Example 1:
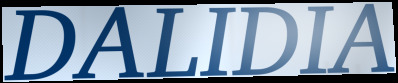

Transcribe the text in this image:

DALIDIA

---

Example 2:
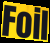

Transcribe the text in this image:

Foil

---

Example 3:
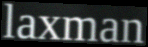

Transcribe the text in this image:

laxman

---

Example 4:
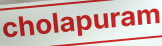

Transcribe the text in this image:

cholapuram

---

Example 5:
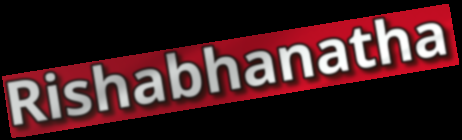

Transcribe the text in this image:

Rishabhanatha